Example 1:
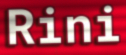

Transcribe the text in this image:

Rini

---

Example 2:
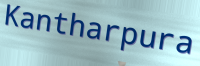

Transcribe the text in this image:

Kantharpura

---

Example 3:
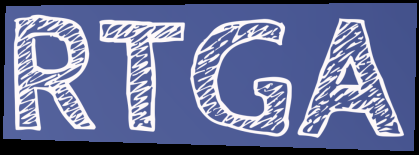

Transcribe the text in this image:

RTGA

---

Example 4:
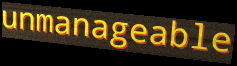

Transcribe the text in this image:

unmanageable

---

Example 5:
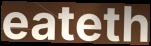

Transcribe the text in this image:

eateth